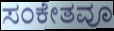
ಸಂಕೇತವೂ